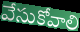
వేసుకోవాలి